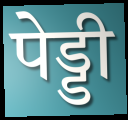
पेड्डी